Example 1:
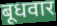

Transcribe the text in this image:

बूधवार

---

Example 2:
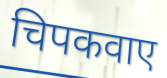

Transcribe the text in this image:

चिपकवाए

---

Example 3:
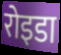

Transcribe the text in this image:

रोइडा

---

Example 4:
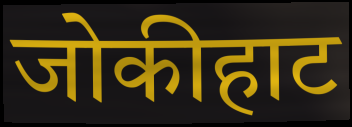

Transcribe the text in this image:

जोकीहाट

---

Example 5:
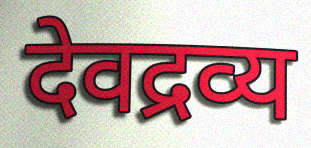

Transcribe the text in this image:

देवद्रव्य